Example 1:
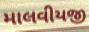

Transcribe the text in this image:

માલવીયજી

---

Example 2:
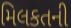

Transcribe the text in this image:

મિલકતની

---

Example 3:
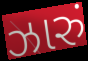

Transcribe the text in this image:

ઝારું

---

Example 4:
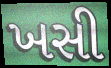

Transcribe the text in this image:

ખસી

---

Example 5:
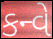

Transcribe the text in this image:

કન્વે